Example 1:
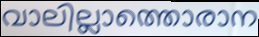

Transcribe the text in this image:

വാലില്ലാത്തൊരാന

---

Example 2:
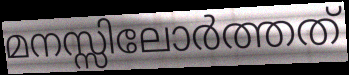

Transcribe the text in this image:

മനസ്സിലോർത്തത്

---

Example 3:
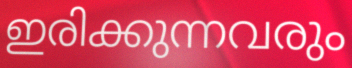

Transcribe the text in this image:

ഇരിക്കുന്നവരും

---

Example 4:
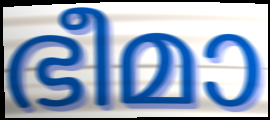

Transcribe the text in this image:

ഭീമാ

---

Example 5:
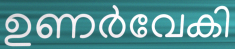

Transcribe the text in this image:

ഉണർവേകി